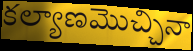
కల్యాణమొచ్చినా